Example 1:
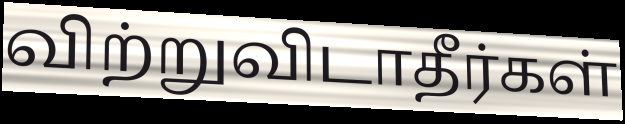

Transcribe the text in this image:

விற்றுவிடாதீர்கள்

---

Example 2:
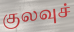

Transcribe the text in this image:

குலவுச்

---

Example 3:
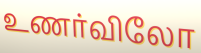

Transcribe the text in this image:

உணர்விலோ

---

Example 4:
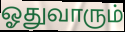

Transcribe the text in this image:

ஓதுவாரும்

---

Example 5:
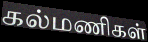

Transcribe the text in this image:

கல்மணிகள்